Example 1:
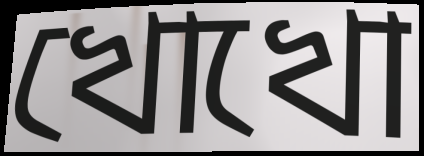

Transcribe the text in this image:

খোখো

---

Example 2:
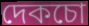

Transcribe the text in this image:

দেকচো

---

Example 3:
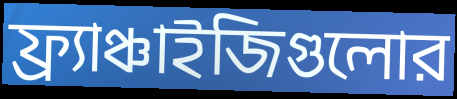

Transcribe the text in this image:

ফ্র্যাঞ্চাইজিগুলোর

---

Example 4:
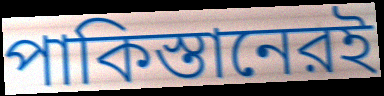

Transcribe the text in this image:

পাকিস্তানেরই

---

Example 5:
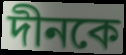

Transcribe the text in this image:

দীনকে